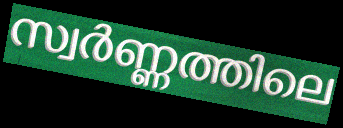
സ്വർണ്ണത്തിലെ